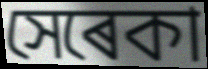
সেৰেকা